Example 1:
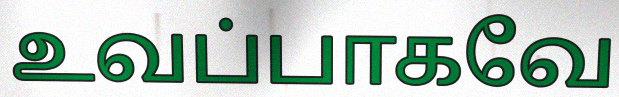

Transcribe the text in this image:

உவப்பாகவே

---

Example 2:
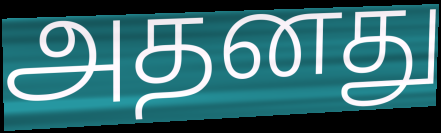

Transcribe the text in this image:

அதனது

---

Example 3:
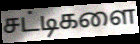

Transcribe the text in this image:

சட்டிகளை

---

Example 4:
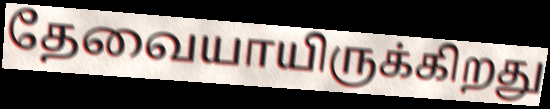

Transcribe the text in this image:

தேவையாயிருக்கிறது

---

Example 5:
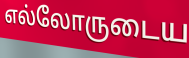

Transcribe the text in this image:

எல்லோருடைய